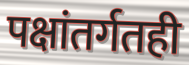
पक्षांतर्गतही